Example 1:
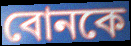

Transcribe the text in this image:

বোনকে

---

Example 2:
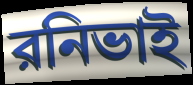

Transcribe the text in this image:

রনিভাই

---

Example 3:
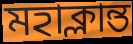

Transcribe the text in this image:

মহাক্লান্ত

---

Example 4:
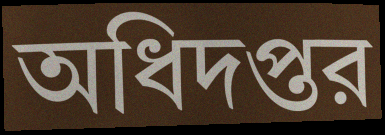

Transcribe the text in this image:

অধিদপ্তর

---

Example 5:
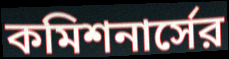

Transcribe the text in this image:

কমিশনার্সের